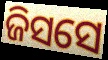
ଜିସସେ